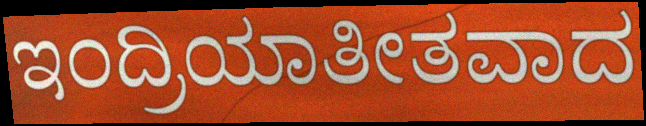
ಇಂದ್ರಿಯಾತೀತವಾದ